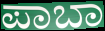
ಪಾಬಾ